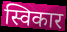
स्विकार